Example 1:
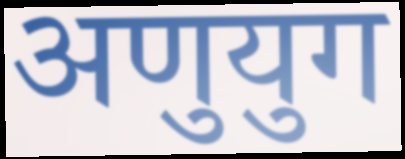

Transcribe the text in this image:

अणुयुग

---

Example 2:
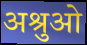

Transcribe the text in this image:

अश्रुओ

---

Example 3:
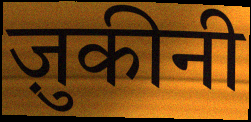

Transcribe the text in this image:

ज़ुकीनी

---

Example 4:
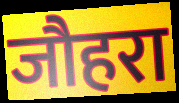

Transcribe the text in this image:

जौहरा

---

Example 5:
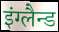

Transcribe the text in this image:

इंग्लैन्ड